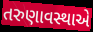
તરુણાવસ્થાએ